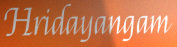
Hridayangam